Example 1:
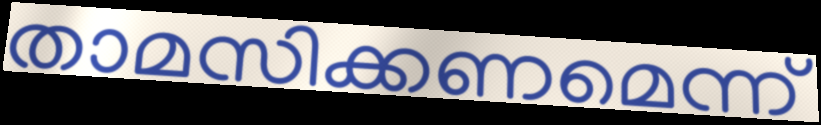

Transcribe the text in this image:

താമസിക്കണമെന്ന്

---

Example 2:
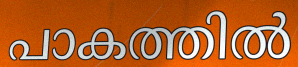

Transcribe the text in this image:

പാകത്തിൽ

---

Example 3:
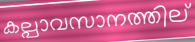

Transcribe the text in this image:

കല്പാവസാനത്തില്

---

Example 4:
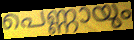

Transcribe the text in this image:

പെണ്ണായും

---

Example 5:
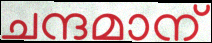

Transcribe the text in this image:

ചന്ദമാന്